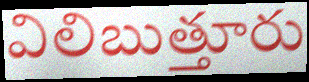
విలిబుత్తూరు